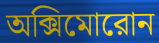
অক্সিমোরোন